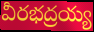
వీరభద్రయ్య